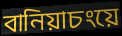
বানিয়াচংয়ে